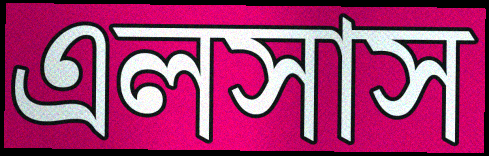
এলসাস